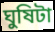
ঘুষিটা